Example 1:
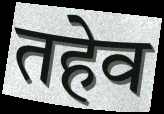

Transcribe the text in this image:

तहेव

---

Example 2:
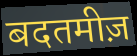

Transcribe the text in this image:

बदतमीज़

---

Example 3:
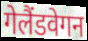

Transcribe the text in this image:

गेलैंडवेगन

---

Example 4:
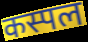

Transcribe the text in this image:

कस्पल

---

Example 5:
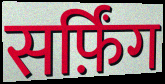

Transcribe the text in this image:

सर्फ़िंग